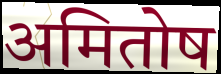
अमितोष